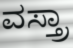
ವಸ್ತ್ರಾ